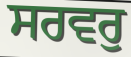
ਸਰਵਰੁ